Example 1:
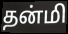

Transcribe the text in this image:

தன்மி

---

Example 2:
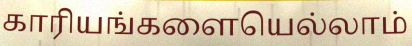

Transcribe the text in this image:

காரியங்களையெல்லாம்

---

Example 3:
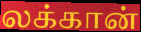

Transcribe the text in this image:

லக்கான்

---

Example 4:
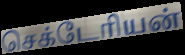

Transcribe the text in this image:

செக்டேரியன்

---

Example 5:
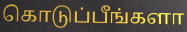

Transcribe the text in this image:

கொடுப்பீங்களா